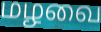
மழவை